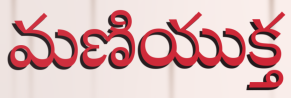
మణియుక్త